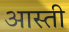
आस्ती